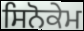
ਸਿਨੋਕੇਮ